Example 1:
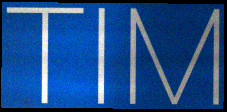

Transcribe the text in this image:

TIM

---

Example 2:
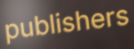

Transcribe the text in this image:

publishers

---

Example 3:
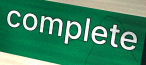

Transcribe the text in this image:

complete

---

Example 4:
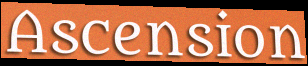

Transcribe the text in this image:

Ascension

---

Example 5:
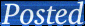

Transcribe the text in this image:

Posted